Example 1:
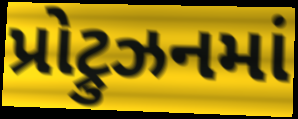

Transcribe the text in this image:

પ્રોટ્રુઝનમાં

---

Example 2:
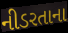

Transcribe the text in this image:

નીડરતાના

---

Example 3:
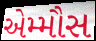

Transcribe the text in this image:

એમ્મૌસ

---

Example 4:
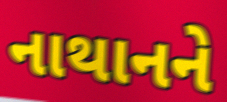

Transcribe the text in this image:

નાથાનને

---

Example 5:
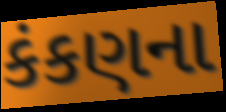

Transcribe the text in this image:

કંકણના